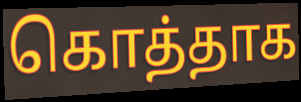
கொத்தாக